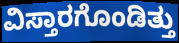
ವಿಸ್ತಾರಗೊಂಡಿತ್ತು